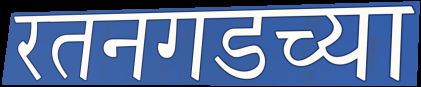
रतनगडच्या